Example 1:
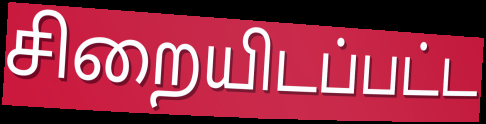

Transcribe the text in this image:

சிறையிடப்பட்ட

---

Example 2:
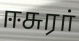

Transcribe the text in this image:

ஈசுரர்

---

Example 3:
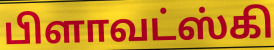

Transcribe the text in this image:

பிளாவட்ஸ்கி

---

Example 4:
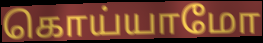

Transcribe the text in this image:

கொய்யாமோ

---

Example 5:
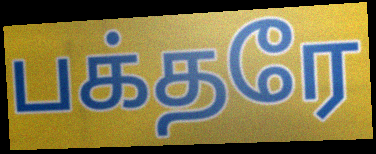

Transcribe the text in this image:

பக்தரே